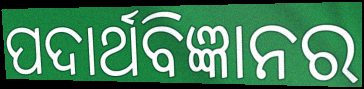
ପଦାର୍ଥବିଜ୍ଞାନର